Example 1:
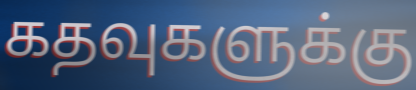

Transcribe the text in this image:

கதவுகளுக்கு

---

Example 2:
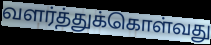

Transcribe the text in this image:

வளர்த்துக்கொள்வது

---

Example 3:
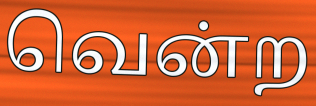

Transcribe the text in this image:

வென்ற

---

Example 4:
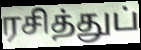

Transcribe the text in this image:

ரசித்துப்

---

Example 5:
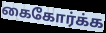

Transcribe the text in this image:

கைகோர்க்க